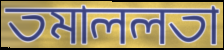
তমাললতা